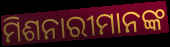
ମିଶନାରୀମାନଙ୍କ